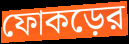
ফোকড়ের